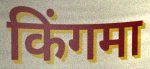
किंगमा